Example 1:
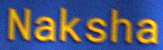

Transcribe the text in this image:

Naksha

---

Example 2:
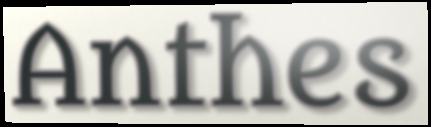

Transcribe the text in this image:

Anthes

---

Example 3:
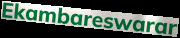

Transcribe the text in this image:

Ekambareswarar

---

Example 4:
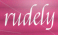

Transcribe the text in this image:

rudely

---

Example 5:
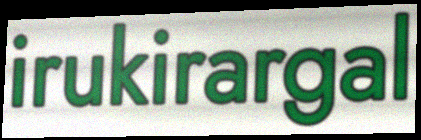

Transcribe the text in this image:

irukirargal